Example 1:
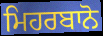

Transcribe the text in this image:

ਮਿਹਰਬਾਨੋ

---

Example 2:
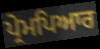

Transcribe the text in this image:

ਪ੍ਰੇਮਪਿਆਰ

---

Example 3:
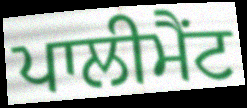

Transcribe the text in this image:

ਪਾਲੀਮੈਂਟ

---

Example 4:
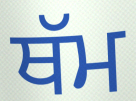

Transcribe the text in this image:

ਥੱਮ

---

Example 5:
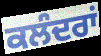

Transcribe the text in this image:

ਕਲੰਦਰਾਂ